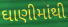
ઘાણીમાંથી